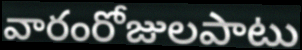
వారంరోజులపాటు